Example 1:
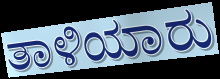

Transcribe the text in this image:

ತಾಳಿಯಾರು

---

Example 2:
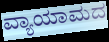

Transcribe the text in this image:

ವ್ಯಾಯಾಮದ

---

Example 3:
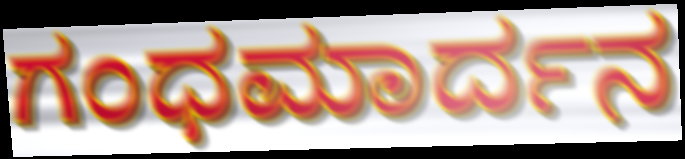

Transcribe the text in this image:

ಗಂಧಮಾರ್ದನ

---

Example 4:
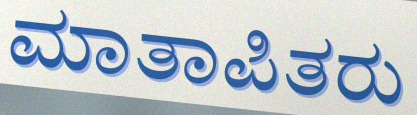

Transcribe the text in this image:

ಮಾತಾಪಿತರು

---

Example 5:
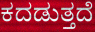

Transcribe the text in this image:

ಕದಡುತ್ತದೆ